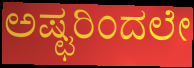
ಅಷ್ಟರಿಂದಲೇ